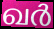
ഖർ